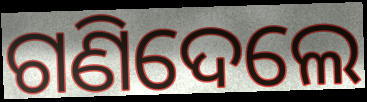
ଗଣିଦେଲେ